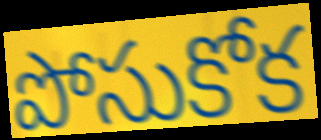
పోసుకోక